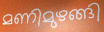
മണിമുഴങ്ങി